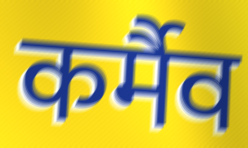
कर्मैव